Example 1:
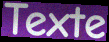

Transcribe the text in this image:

Texte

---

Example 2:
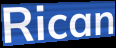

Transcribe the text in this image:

Rican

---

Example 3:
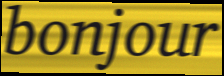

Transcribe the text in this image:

bonjour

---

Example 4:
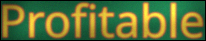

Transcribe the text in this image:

Profitable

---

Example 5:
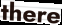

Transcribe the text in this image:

there